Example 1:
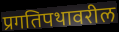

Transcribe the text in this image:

प्रगतिपथावरील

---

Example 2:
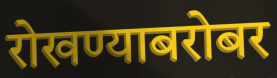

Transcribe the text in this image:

रोखण्याबरोबर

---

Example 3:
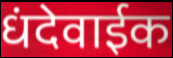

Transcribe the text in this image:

धंदेवाईक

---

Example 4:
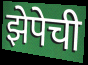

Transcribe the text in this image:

झेपेची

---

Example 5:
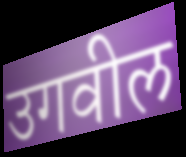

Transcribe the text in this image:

उगवील